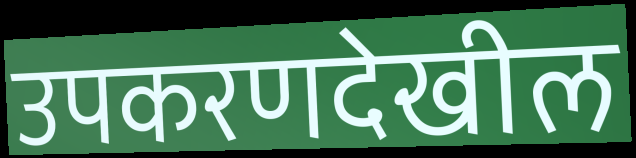
उपकरणदेखील